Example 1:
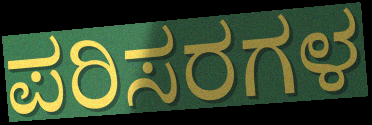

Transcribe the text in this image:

ಪರಿಸರಗಳ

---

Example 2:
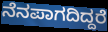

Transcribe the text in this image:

ನೆನಪಾಗದಿದ್ದರೆ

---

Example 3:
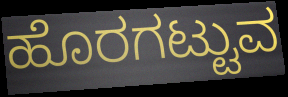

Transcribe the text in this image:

ಹೊರಗಟ್ಟುವ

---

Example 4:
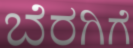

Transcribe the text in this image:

ಬೆರಗಿಗೆ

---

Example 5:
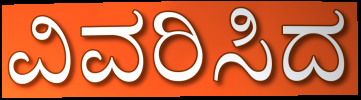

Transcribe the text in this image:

ವಿವರಿಸಿದ